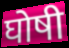
घोषी